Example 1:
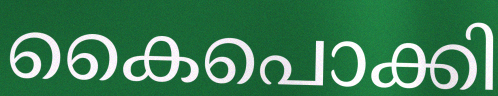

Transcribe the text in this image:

കൈപൊക്കി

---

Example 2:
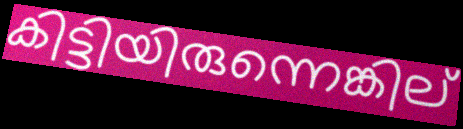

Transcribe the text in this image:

കിട്ടിയിരുന്നെങ്കില്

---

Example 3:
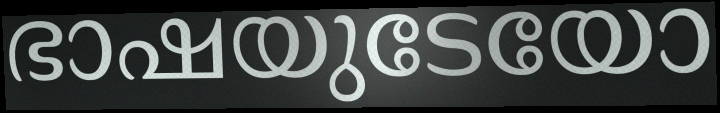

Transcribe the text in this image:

ഭാഷയുടേയോ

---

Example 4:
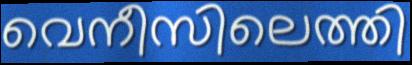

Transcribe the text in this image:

വെനീസിലെത്തി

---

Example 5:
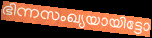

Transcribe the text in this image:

ഭിന്നസംഖ്യയായിട്ടോ